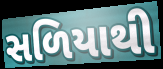
સળિયાથી